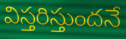
విస్తరిస్తుందనే